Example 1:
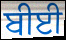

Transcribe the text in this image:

ਬੀਈ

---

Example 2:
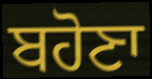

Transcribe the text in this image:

ਬਹੋਣਾ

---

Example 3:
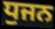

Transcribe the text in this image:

ਧੁਜਨ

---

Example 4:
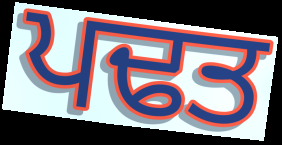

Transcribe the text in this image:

ਪਢਤ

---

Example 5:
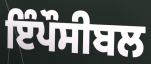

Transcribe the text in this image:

ਇੰਪੌਸੀਬਲ